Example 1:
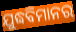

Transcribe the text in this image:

ଯୁଦ୍ଧବିମାନର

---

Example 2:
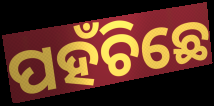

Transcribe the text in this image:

ପହଁଚିଛେ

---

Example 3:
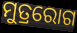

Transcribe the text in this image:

ମୁତ୍ରରୋଗ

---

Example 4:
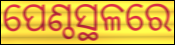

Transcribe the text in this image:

ପେଣ୍ଠସ୍ଥଳରେ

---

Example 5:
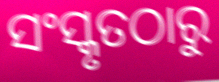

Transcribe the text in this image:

ସଂସ୍କୃତଠାରୁ